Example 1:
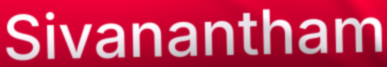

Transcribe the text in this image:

Sivanantham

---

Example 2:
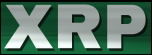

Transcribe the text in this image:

XRP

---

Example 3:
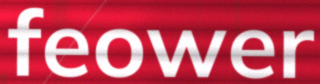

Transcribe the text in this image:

feower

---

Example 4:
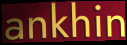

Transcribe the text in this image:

ankhin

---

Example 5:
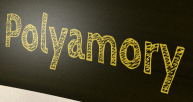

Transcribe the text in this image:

Polyamory